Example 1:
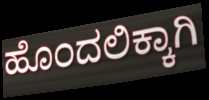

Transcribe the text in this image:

ಹೊಂದಲಿಕ್ಕಾಗಿ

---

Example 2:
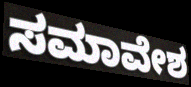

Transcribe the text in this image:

ಸಮಾವೇಶ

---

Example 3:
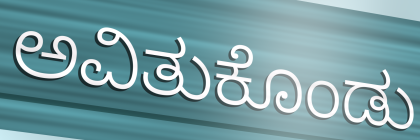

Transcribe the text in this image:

ಅವಿತುಕೊಂಡು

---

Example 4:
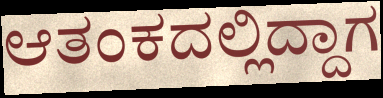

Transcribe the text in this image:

ಆತಂಕದಲ್ಲಿದ್ದಾಗ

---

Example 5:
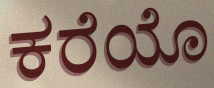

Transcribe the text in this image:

ಕರೆಯೊ